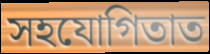
সহযোগিতাত